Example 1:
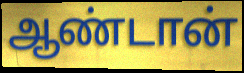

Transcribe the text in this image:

ஆண்டான்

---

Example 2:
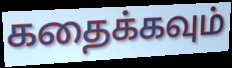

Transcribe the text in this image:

கதைக்கவும்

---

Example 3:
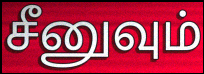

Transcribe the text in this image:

சீனுவும்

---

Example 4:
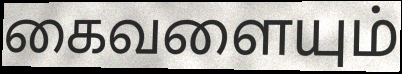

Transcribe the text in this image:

கைவளையும்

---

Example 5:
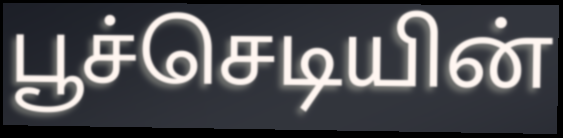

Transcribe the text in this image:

பூச்செடியின்